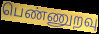
பெண்ணுறவு